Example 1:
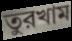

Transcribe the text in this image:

তুরখাম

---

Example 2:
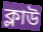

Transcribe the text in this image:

ক্লাউ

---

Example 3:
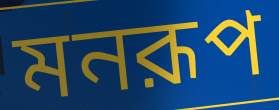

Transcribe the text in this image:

মনরূপ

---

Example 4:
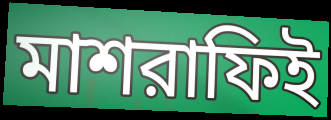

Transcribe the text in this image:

মাশরাফিই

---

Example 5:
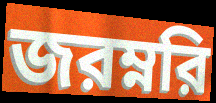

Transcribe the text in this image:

জরম্নরি